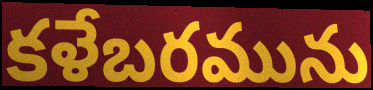
కళేబరమును